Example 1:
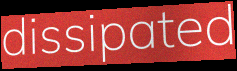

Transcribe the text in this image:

dissipated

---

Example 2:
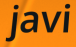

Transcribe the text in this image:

javi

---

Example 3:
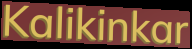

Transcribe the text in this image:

Kalikinkar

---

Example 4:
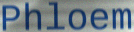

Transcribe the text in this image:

Phloem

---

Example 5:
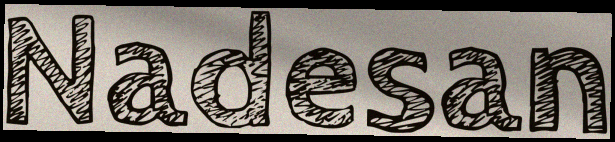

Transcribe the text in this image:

Nadesan